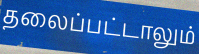
தலைப்பட்டாலும்